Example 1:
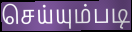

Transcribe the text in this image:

செய்யும்படி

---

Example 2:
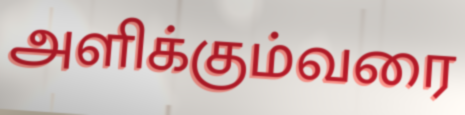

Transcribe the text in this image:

அளிக்கும்வரை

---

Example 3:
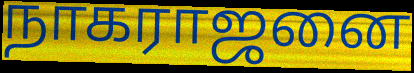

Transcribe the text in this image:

நாகராஜனை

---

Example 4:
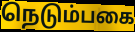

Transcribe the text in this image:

நெடும்பகை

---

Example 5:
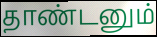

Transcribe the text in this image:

தாண்டனும்